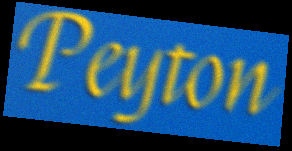
Peyton